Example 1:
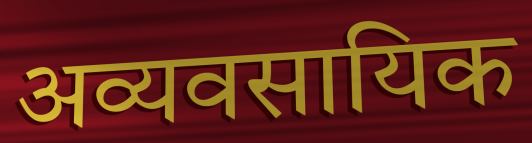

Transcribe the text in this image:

अव्यवसायिक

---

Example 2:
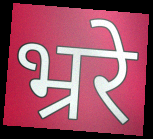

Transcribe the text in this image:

भ्ररे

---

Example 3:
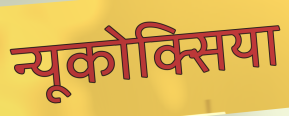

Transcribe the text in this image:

न्यूकोक्सिया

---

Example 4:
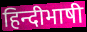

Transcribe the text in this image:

हिन्दीभाषी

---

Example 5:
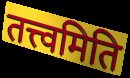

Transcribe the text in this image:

तत्त्वमिति